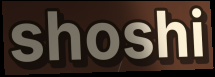
shoshi